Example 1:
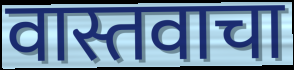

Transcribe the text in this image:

वास्तवाचा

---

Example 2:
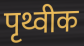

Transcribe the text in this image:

पृथ्वीक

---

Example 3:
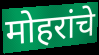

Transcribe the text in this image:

मोहरांचे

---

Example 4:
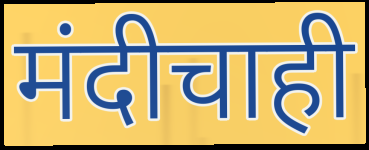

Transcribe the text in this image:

मंदीचाही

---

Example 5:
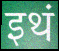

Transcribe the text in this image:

इथं